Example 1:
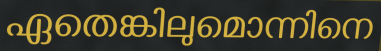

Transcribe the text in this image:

ഏതെങ്കിലുമൊന്നിനെ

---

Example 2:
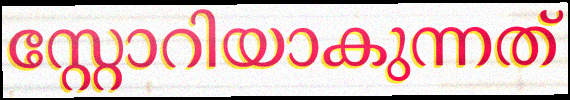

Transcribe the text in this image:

സ്റ്റോറിയാകുന്നത്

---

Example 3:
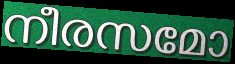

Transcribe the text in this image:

നീരസമോ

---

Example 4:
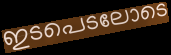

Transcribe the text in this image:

ഇടപെടലോടെ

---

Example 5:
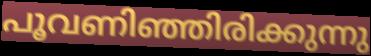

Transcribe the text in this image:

പൂവണിഞ്ഞിരിക്കുന്നു